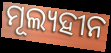
ମୂଲ୍ୟହୀନ